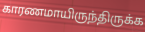
காரணமாயிருந்திருக்க